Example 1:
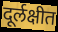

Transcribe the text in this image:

दूर्लक्षीत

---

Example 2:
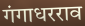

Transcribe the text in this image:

गंगाधरराव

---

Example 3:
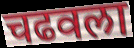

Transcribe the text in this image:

चढवला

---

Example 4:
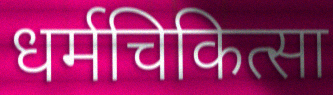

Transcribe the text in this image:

धर्मचिकित्सा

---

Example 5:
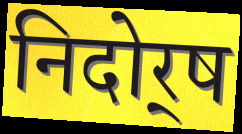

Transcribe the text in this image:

निदोर्ष